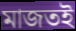
মাজতই